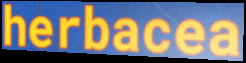
herbacea